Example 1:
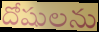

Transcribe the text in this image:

దోషులను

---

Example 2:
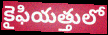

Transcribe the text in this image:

కైఫియత్తులో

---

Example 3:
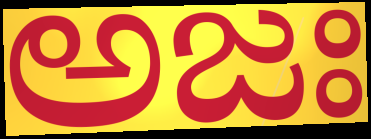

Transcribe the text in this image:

అజః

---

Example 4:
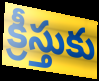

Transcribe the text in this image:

క్రీస్తుకు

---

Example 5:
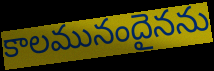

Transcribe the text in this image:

కాలమునందైనను